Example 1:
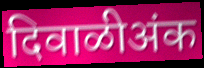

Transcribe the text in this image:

दिवाळीअंक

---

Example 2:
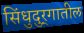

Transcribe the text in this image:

सिंधुदुर्गातील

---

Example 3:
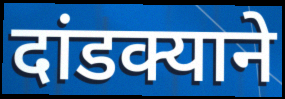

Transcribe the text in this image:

दांडक्याने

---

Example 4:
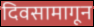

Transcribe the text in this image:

दिवसामागून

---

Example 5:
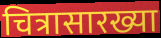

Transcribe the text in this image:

चित्रासारख्या